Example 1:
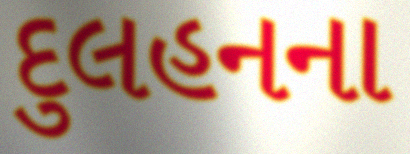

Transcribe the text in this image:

દુલહનના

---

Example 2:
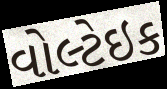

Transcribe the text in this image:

વોલ્ટેઇક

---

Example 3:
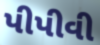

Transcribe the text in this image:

પીપીવી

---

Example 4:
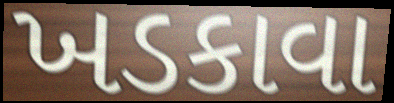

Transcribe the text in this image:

ખડકાવા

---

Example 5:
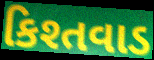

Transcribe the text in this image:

કિશ્તવાડ